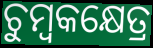
ଚୁମ୍ବକକ୍ଷେତ୍ର